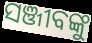
ସଞ୍ଜୀବଙ୍କୁ